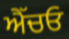
ਐੱਚਓ